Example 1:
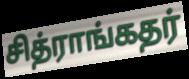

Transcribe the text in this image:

சித்ராங்கதர்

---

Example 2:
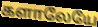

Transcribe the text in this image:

களாலேயே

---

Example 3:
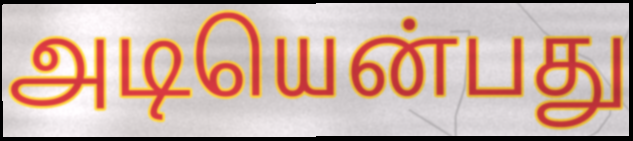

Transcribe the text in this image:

அடியென்பது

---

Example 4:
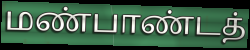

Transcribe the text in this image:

மண்பாண்டத்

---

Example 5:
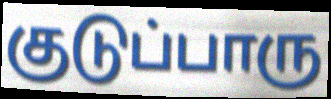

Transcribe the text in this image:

குடுப்பாரு